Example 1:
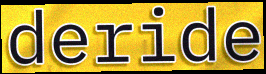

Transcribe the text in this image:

deride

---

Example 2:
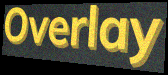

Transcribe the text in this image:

Overlay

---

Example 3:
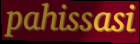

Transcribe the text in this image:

pahissasi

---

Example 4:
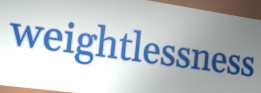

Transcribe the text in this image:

weightlessness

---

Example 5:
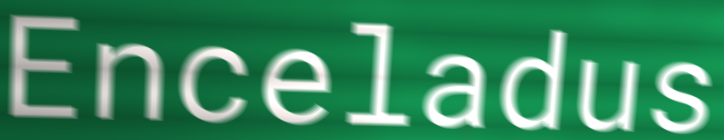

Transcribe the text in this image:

Enceladus